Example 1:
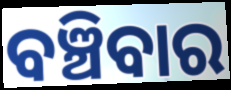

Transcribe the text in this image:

ବଞ୍ଚିବାର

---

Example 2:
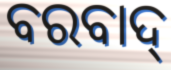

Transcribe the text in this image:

ବରବାଦ୍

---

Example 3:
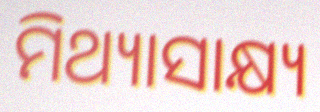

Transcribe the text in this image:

ମିଥ୍ୟାସାକ୍ଷ୍ୟ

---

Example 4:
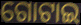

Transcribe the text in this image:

ଗୋଟାଇ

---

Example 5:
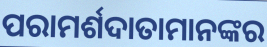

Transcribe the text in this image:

ପରାମର୍ଶଦାତାମାନଙ୍କର